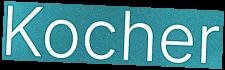
Kocher